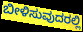
ಬೀಳಿಸುವುದರಲ್ಲಿ